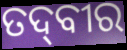
ତଦ୍‌ବୀର